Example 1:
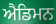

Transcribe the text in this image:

ਐਡਿਮਨ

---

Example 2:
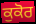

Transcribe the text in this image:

ਕੁਕੋਰ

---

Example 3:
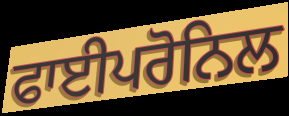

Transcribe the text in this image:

ਫਾਈਪਰੋਨਿਲ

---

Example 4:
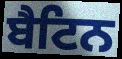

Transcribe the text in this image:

ਬੈਟਿਨ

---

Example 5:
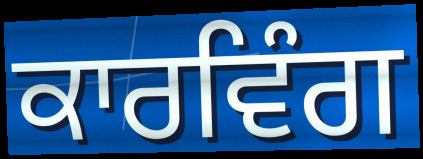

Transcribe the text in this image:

ਕਾਰਵਿੰਗ